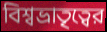
বিশ্বভ্রাতৃত্বের